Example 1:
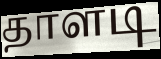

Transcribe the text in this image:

தாளடி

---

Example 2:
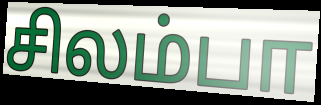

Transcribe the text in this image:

சிலம்பா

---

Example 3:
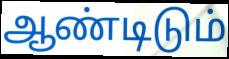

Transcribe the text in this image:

ஆண்டிடும்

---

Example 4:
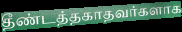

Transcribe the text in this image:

தீண்டத்தகாதவர்களாக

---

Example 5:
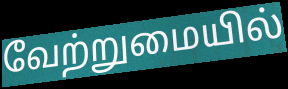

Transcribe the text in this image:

வேற்றுமையில்